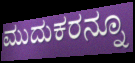
ಮುದುಕರನ್ನೂ